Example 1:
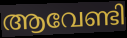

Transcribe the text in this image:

ആവേണ്ടി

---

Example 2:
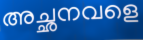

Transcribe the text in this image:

അച്ഛനവളെ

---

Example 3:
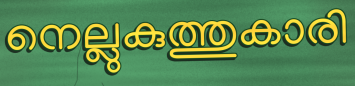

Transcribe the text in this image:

നെല്ലുകുത്തുകാരി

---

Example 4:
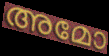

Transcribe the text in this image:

അമോ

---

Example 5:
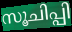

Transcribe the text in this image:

സൂചിപ്പി